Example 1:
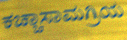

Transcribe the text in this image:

ಕಚ್ಚಾಸಾಮಗ್ರಿಯ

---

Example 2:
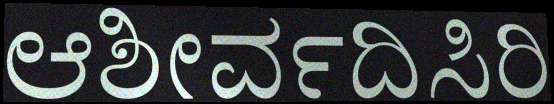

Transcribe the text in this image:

ಆಶೀರ್ವದಿಸಿರಿ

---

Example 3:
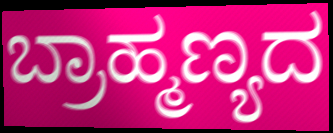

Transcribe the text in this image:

ಬ್ರಾಹ್ಮಣ್ಯದ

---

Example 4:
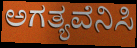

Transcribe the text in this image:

ಅಗತ್ಯವೆನಿಸಿ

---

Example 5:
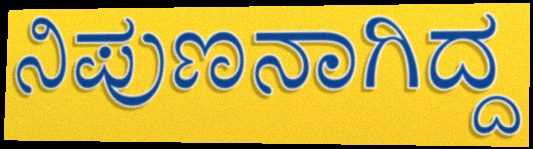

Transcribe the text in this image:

ನಿಪುಣನಾಗಿದ್ದ